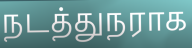
நடத்துநராக